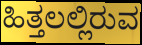
ಹಿತ್ತಲಲ್ಲಿರುವ